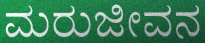
ಮರುಜೀವನ